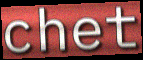
chet